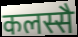
कलस्सै